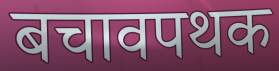
बचावपथक